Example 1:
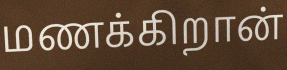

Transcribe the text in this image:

மணக்கிறான்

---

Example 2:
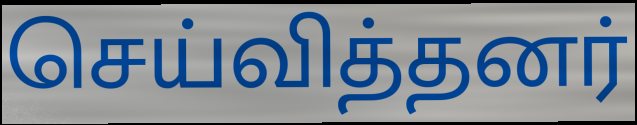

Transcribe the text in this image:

செய்வித்தனர்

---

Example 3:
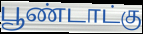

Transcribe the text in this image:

பூண்டாட்கு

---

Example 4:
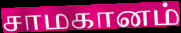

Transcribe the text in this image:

சாமகானம்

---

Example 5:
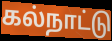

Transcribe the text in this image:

கல்நாட்டு